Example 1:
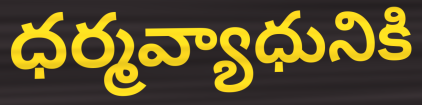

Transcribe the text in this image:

ధర్మవ్యాధునికి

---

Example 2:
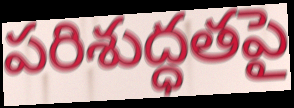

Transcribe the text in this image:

పరిశుద్ధతపై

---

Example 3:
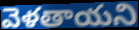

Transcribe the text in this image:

వెళతాయని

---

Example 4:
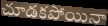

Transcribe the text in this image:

చూడకపోయినా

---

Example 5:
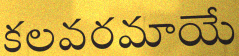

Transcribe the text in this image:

కలవరమాయే